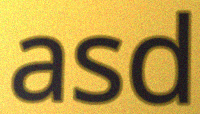
asd